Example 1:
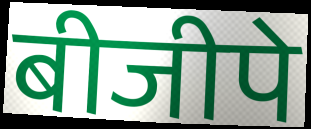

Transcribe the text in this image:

बीजीपे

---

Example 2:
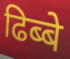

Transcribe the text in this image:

ढिब्बे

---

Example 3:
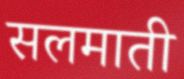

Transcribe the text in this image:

सलमाती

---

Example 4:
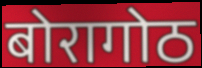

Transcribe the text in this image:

बोरागोठ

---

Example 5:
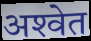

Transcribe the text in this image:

अश्‍वेत